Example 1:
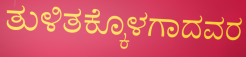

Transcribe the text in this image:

ತುಳಿತಕ್ಕೊಳಗಾದವರ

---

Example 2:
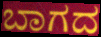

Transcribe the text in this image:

ಬಾಗದ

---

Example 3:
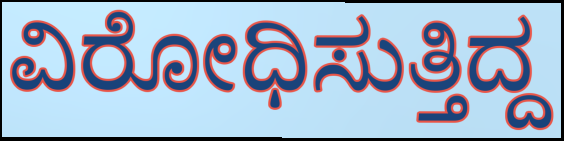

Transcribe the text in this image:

ವಿರೋಧಿಸುತ್ತಿದ್ದ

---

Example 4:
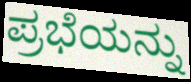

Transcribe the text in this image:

ಪ್ರಭೆಯನ್ನು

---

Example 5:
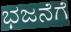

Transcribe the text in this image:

ಭಜನೆಗೆ